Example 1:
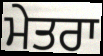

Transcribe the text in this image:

ਮੇਤਰਾ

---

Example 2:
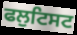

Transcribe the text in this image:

ਫਲੁਟਿਸਟ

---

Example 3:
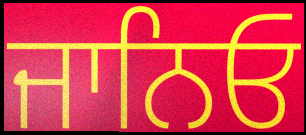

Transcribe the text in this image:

ਜਾਨਿਓ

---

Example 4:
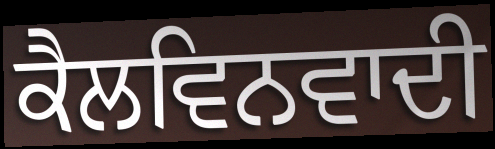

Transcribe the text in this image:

ਕੈਲਵਿਨਵਾਦੀ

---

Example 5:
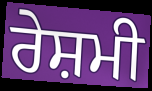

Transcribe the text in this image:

ਰੇਸ਼ਮੀ